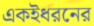
একইধরনের